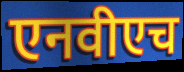
एनवीएच